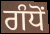
ਗੰਧੋਂ